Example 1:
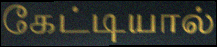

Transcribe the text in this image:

கேட்டியால்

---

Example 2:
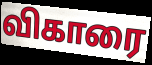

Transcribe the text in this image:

விகாரை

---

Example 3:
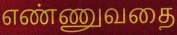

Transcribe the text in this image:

எண்ணுவதை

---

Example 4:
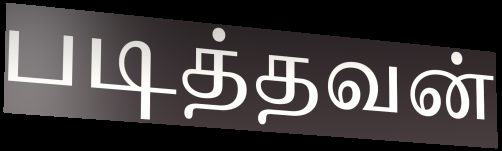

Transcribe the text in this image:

படித்தவன்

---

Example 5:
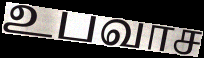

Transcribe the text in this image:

உபவாச